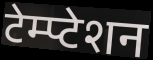
टेम्प्टेशन